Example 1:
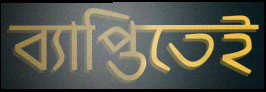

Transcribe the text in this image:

ব্যাপ্তিতেই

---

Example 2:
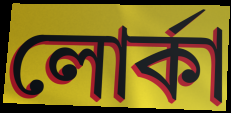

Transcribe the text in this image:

লোর্কা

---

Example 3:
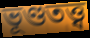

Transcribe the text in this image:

ভূণ্ডতত্ত্ব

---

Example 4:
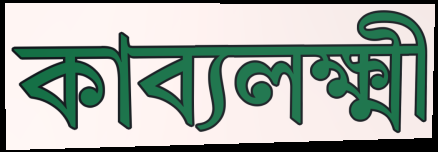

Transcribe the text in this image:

কাব্যলক্ষ্মী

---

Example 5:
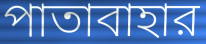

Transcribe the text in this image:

পাতাবাহার